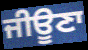
ਜੀਊਣਾ